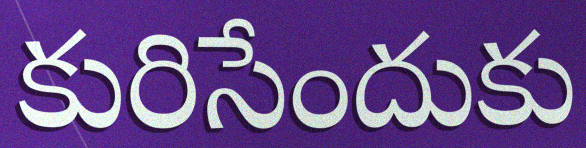
కురిసేందుకు